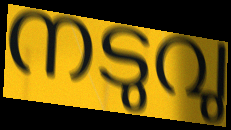
നടുവു